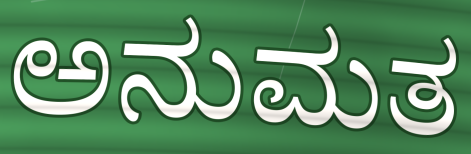
ಅನುಮತ